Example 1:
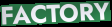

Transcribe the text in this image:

FACTORY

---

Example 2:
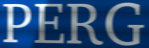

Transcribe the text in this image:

PERG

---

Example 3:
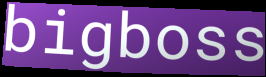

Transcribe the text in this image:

bigboss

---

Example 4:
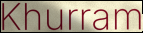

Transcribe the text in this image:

Khurram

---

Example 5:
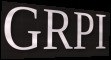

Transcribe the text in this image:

GRPI